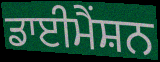
ਡਾਈਮੈਂਸ਼ਨ